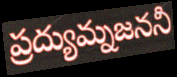
ప్రద్యుమ్నజననీ